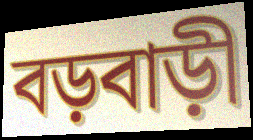
বড়বাড়ী